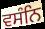
ਵਸੰਨਿ